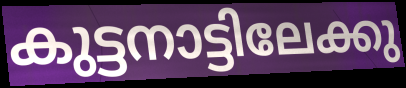
കുട്ടനാട്ടിലേക്കു